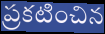
ప్రకటించిన